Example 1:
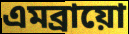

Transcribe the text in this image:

এমব্রায়ো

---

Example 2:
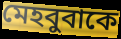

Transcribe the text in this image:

মেহবুবাকে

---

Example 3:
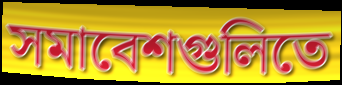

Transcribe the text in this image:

সমাবেশগুলিতে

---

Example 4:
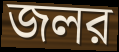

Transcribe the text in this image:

জলর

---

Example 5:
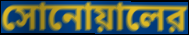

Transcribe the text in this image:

সোনোয়ালের